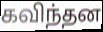
கவிந்தன